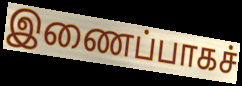
இணைப்பாகச்